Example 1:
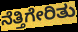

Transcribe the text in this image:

ನೆತ್ತಿಗೇರಿತು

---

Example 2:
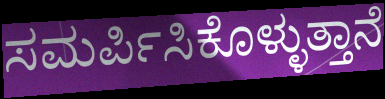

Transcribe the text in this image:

ಸಮರ್ಪಿಸಿಕೊಳ್ಳುತ್ತಾನೆ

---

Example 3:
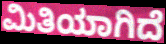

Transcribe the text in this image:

ಮಿತಿಯಾಗಿದೆ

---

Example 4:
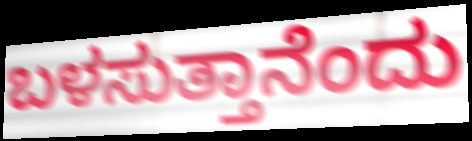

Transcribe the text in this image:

ಬಳಸುತ್ತಾನೆಂದು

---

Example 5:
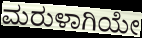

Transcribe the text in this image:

ಮರುಳಾಗಿಯೇ